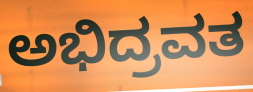
ಅಭಿದ್ರವತ